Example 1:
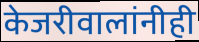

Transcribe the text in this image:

केजरीवालांनीही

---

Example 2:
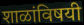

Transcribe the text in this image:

शाळांविषयी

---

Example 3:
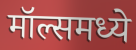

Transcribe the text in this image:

मॉल्समध्ये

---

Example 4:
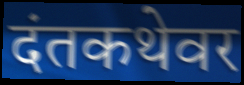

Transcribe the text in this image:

दंतकथेवर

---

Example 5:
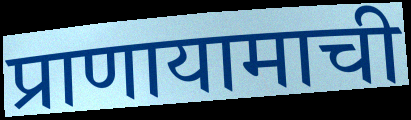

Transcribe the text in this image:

प्राणायामाची